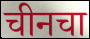
चीनचा